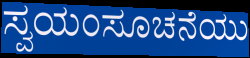
ಸ್ವಯಂಸೂಚನೆಯು